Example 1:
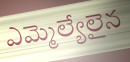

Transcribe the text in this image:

ఎమ్మెల్యేలైన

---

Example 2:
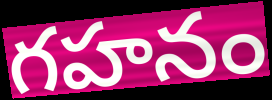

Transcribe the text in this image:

గహనం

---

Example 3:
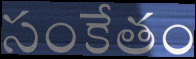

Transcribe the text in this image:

సంకేతం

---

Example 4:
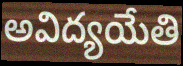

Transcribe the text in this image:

అవిద్యయేతి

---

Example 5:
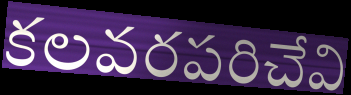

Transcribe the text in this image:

కలవరపరిచేవి